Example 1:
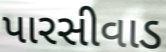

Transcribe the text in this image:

પારસીવાડ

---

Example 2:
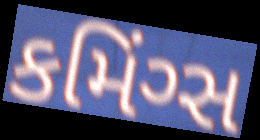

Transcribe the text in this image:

કમિંગ્સ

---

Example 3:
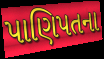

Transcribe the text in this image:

પાણિપતના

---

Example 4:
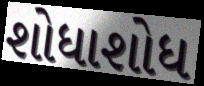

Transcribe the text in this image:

શોધાશોધ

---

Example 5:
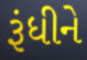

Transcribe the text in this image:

રૂંધીને